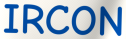
IRCON